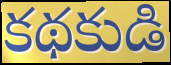
కథకుడి